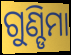
ଗୁଣ୍ଡିମା